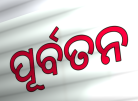
ପୂର୍ବତନ